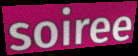
soiree